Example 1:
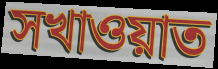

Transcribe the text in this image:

সখাওয়াত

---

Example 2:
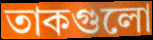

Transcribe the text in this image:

তাকগুলো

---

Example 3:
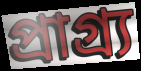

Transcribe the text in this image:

প্রাগ্র্য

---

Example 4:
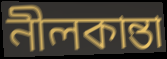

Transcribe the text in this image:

নীলকান্তা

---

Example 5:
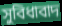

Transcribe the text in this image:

সুবিধাবাদ